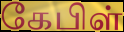
கேபிள்